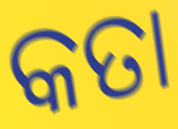
କତା